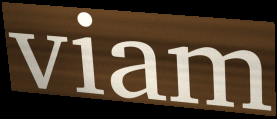
viam